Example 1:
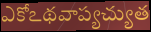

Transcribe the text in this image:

ఎకోఽథవాప్యచ్యుత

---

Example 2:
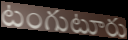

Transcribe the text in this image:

టంగుటూరు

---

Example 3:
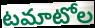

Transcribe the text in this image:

టమాటోల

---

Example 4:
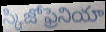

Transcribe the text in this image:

స్కిజోఫ్రెనియా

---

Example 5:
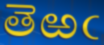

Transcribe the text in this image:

తెఱఁ